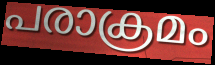
പരാക്രമം